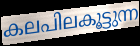
കലപിലകൂട്ടുന്ന